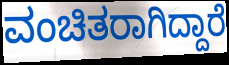
ವಂಚಿತರಾಗಿದ್ದಾರೆ